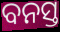
ବନସ୍ତ